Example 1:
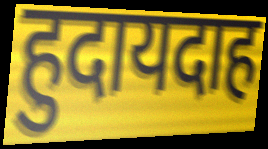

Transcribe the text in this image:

हुदायदाह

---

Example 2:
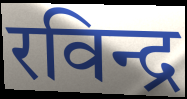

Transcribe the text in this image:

रविन्द्र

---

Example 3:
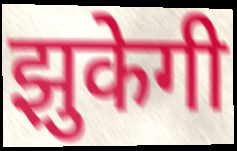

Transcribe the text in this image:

झुकेगी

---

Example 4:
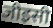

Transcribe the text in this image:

जीइसी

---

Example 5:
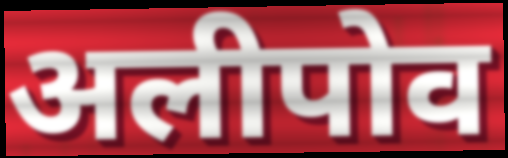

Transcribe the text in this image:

अलीपोव